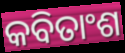
କବିତାଂଶ